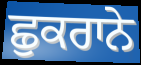
ਛੁਕਰਾਨੇ